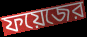
ফয়েজের